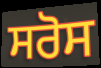
ਸਰੋਸ